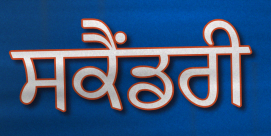
ਸਕੈੰਡਰੀ